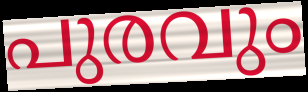
പുരവും